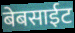
बेबसाईट